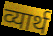
व्यार्थ